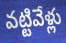
వట్టివేళ్లు